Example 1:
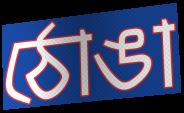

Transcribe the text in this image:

ঠোঙা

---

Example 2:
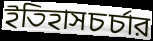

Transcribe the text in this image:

ইতিহাসচর্চার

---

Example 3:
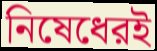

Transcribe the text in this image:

নিষেধেরই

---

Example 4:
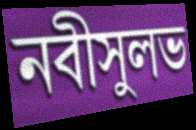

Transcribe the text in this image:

নবীসুলভ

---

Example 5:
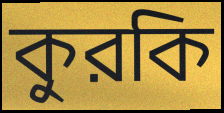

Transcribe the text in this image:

কুরকি